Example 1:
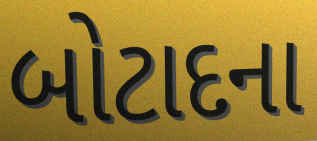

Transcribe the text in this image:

બોટાદના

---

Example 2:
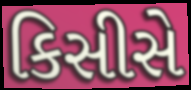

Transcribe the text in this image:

કિસીસે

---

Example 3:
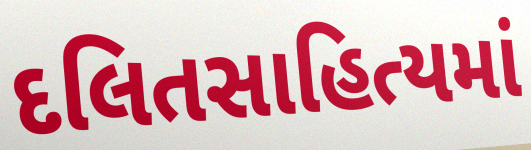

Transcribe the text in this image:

દલિતસાહિત્યમાં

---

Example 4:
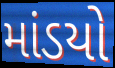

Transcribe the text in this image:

માંડયો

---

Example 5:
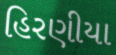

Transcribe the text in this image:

હિરણીયા